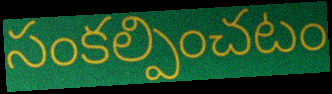
సంకల్పించటం